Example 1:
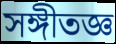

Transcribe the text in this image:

সঙ্গীতজ্ঞ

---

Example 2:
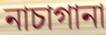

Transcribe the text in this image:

নাচাগানা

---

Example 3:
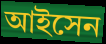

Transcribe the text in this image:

আইসেন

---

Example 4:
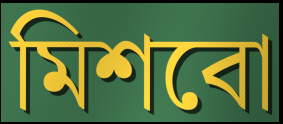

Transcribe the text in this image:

মিশবো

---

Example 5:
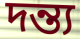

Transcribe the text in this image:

দন্ত্য